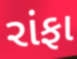
રાંફા